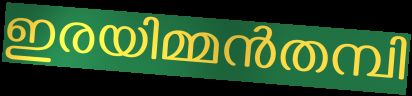
ഇരയിമ്മൻതമ്പി